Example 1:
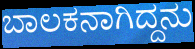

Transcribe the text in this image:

ಬಾಲಕನಾಗಿದ್ದನು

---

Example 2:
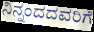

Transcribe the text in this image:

ನಿನ್ನಂದದವರಿಗೆ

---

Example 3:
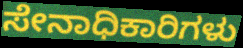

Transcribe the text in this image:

ಸೇನಾಧಿಕಾರಿಗಳು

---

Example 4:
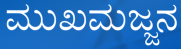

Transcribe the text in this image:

ಮುಖಮಜ್ಜನ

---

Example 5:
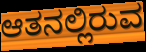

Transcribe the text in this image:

ಆತನಲ್ಲಿರುವ